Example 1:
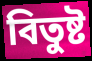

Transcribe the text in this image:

বিতুষ্ট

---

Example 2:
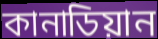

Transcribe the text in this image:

কানাডিয়ান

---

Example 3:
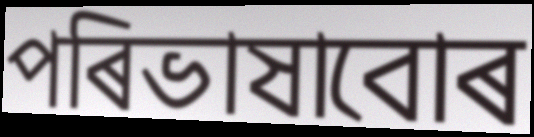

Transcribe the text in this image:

পৰিভাষাবোৰ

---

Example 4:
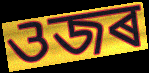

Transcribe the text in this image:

ওজৰ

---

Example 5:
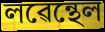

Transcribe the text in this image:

লৱেন্থেল